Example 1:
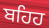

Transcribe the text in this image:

ਬਹਿਹ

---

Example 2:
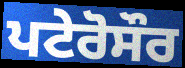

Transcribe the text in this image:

ਪਟੇਰੋਸੌਰ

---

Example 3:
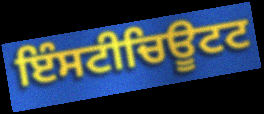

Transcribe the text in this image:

ਇੰਸਟੀਚਿਊਟਟ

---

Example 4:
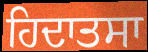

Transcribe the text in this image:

ਹਿਦਾਤਸਾ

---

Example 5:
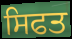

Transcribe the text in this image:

ਸਿਫਤ